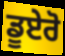
ਡੂਏਰੋ